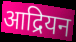
आद्रियन